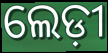
ଲେଡ଼ୀ